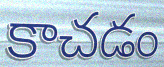
కాచడం